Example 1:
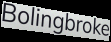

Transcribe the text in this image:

Bolingbroke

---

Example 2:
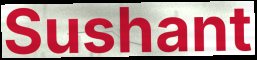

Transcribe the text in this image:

Sushant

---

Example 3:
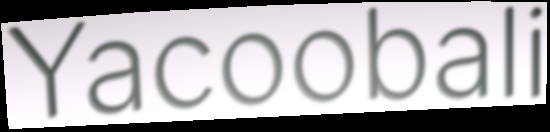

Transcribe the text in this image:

Yacoobali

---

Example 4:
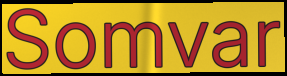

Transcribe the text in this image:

Somvar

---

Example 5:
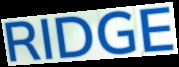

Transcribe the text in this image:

RIDGE